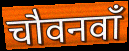
चौवनवाँ